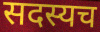
सदस्यच